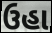
ઉહા